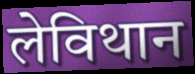
लेविथान